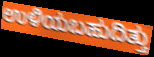
ಉಳಿಯಬಹುದಿತ್ತು